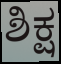
ಶಿಕ್ಷ